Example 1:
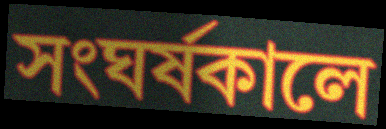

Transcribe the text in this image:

সংঘর্ষকালে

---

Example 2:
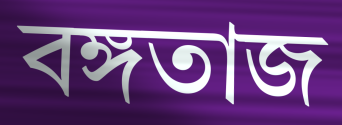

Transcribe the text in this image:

বঙ্গতাজ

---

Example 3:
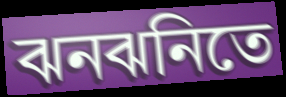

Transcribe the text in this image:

ঝনঝনিতে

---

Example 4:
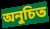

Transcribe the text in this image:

অনুচিত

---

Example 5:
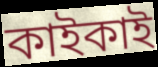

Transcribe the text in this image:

কাইকাই